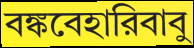
বঙ্কবেহারিবাবু